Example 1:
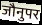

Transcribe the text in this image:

जौनुपर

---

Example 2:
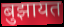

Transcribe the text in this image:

बुझायत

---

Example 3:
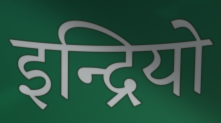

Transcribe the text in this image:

इन्द्रियो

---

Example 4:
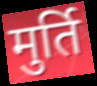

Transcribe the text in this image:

मुर्ति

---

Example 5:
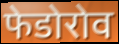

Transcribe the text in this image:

फेडोरोव